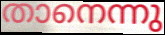
താനെന്നു